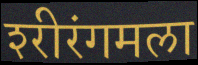
श्रीरंगमला